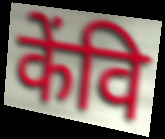
केंवि